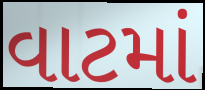
વાટમાં